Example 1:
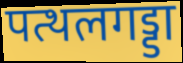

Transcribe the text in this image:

पत्थलगड्डा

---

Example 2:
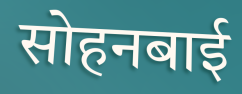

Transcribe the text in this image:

सोहनबाई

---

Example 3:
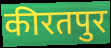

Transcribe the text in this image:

कीरतपुर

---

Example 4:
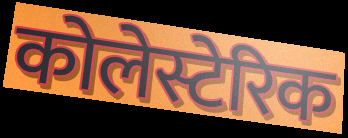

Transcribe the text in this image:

कोलेस्टेरिक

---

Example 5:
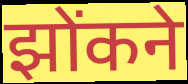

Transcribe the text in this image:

झोंकने